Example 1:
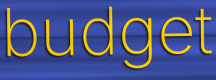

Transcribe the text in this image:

budget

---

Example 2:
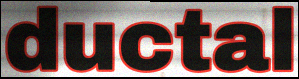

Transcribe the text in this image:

ductal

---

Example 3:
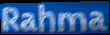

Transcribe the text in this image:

Rahma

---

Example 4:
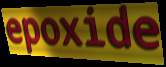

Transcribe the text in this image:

epoxide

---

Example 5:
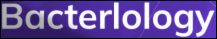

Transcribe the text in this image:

Bacterlology